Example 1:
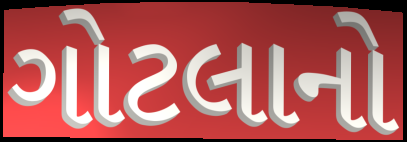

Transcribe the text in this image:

ગોટલાનો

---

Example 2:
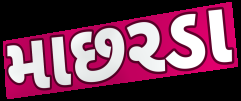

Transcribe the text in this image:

માછરડા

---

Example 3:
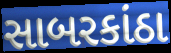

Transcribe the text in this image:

સાબરકાંઠા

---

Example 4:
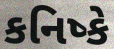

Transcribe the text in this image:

કનિષ્કે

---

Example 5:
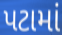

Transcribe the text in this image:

પટામાં